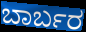
ಬಾರ್ಬರ